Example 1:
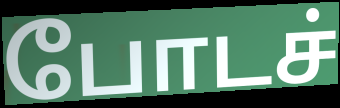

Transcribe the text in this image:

போடச்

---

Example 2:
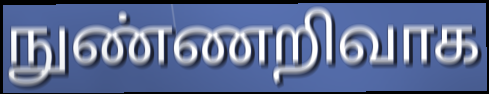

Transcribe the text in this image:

நுண்ணறிவாக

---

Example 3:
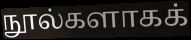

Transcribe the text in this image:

நூல்களாகக்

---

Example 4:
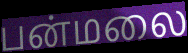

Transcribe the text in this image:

பன்மலை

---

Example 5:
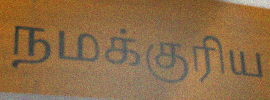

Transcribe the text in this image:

நமக்குரிய